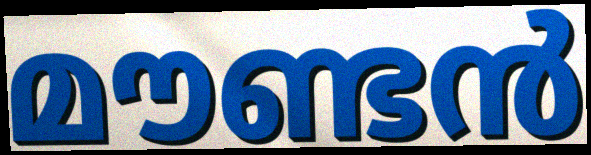
മൗണ്ടൻ